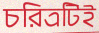
চরিত্রটিই